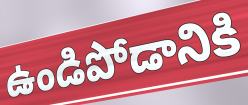
ఉండిపోడానికి